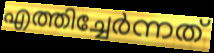
എത്തിച്ചേർന്നത്